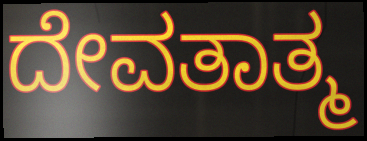
ದೇವತಾತ್ಮ